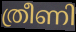
ത്രീണി